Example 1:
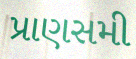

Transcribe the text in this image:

પ્રાણસમી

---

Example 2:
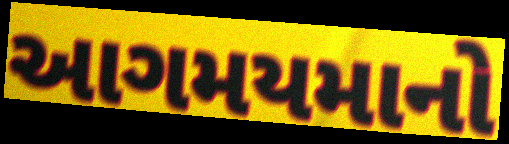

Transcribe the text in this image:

આગમયમાનો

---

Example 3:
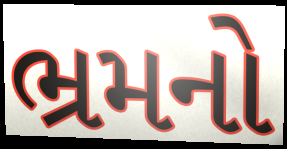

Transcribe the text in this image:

ભ્રમનો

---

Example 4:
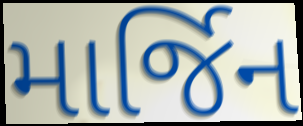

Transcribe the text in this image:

માર્જિન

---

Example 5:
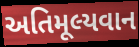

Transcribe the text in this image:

અતિમૂલ્યવાન